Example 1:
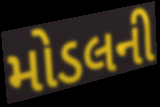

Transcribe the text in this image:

મોડલની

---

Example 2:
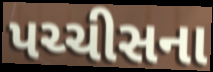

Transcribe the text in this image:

પચ્ચીસના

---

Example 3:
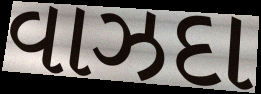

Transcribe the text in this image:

વાઝદા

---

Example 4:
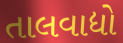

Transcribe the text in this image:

તાલવાદ્યો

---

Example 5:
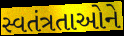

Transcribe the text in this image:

સ્વતંત્રતાઓને